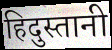
हिदुस्तानी